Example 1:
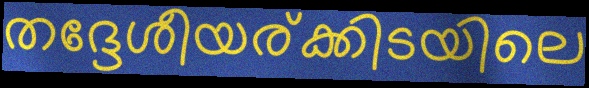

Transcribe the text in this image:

തദ്ദേശീയര്ക്കിടയിലെ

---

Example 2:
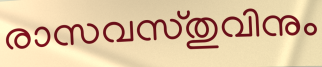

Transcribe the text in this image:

രാസവസ്തുവിനും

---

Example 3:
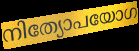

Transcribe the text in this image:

നിത്യോപയോഗ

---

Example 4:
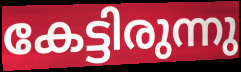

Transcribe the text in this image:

കേട്ടിരുന്നു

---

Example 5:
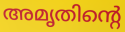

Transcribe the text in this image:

അമൃതിന്റെ